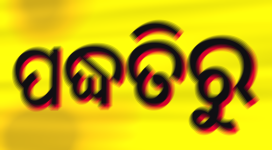
ପଦ୍ଧତିରୁ